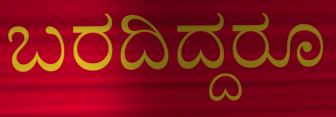
ಬರದಿದ್ದರೂ